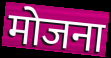
मोजना